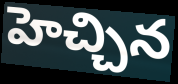
హెచ్చిన